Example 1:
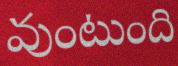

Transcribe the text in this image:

వుంటుంది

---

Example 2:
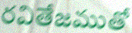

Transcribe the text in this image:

రవితేజముతో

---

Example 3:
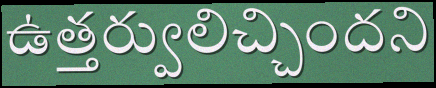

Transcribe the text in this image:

ఉత్తర్వులిచ్చిందని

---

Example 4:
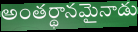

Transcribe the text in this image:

అంతర్థానమైనాడు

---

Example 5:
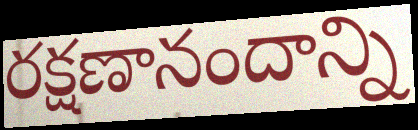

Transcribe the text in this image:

రక్షణానందాన్ని